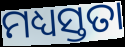
ମଧ୍ୟସ୍ତତା